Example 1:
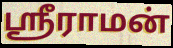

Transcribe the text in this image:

ஸ்ரீராமன்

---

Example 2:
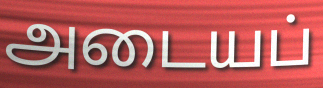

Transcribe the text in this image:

அடையப்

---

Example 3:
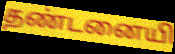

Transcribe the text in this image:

தண்டனையி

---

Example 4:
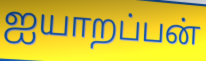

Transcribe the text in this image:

ஐயாறப்பன்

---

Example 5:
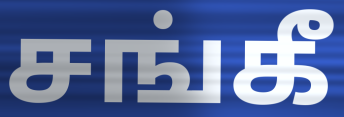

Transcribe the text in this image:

சங்கீ